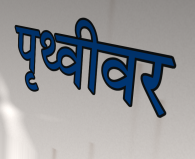
पृथ्वीवर